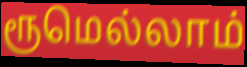
ரூமெல்லாம்